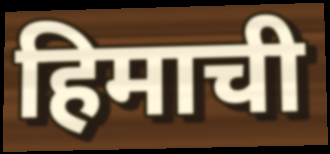
हिमाची